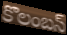
కొలంబస్